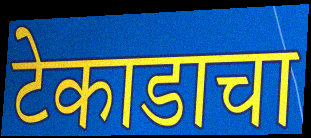
टेकाडाचा